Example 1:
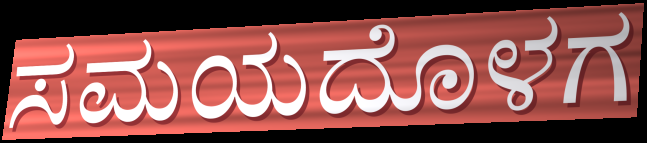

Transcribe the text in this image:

ಸಮಯದೊಳಗ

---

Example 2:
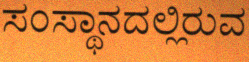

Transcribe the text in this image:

ಸಂಸ್ಥಾನದಲ್ಲಿರುವ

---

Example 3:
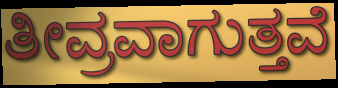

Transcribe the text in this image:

ತೀವ್ರವಾಗುತ್ತವೆ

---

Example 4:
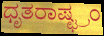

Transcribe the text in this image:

ಧೃತರಾಷ್ಟ್ರಂ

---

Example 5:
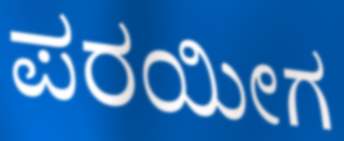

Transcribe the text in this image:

ಪರಯೀಗ